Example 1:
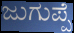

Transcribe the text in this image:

ಜುಗುಪ್ಪೆ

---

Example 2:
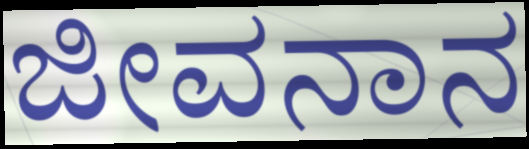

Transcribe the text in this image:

ಜೀವನಾನ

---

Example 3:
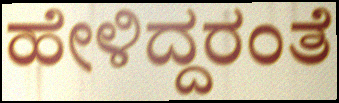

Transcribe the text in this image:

ಹೇಳಿದ್ದರಂತೆ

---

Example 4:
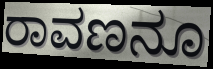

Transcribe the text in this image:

ರಾವಣನೂ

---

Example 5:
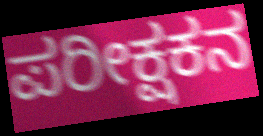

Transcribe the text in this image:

ಪರೀಕ್ಷಕನ